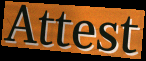
Attest